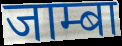
जाम्बा